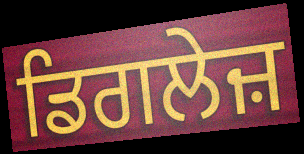
ਡਿਗਲੇਜ਼